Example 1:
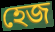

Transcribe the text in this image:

হেজ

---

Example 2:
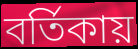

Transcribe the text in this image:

বর্তিকায়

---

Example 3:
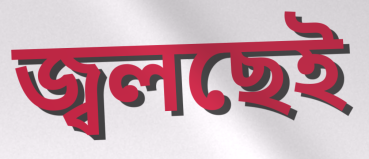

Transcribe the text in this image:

জ্বলছেই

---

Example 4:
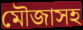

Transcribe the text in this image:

মৌজাসহ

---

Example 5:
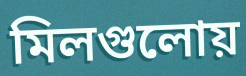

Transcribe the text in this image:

মিলগুলোয়